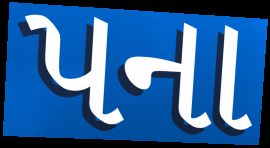
પના